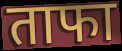
ताफा